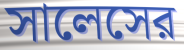
সালেসের